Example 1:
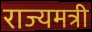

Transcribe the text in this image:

राज्यमत्री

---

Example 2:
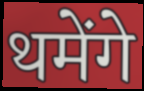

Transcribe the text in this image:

थमेंगे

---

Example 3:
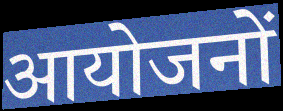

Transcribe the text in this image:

आयोजनों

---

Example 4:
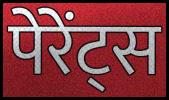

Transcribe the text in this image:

पेरेंट्स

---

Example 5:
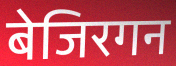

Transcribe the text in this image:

बेजिरगन